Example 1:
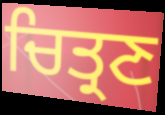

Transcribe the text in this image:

ਚਿਤ੍ਰਣ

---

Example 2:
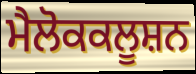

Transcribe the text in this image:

ਮੈਲੋਕਕਲੂਸ਼ਨ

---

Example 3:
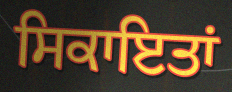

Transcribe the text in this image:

ਸਿਕਾਇਤਾਂ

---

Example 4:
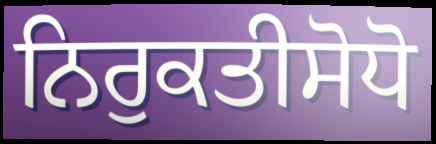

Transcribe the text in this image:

ਨਿਰੁਕਤੀਸੋਧੋ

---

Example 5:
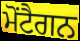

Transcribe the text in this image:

ਮੋਂਟੈਗਨ